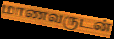
மாணவருடன்